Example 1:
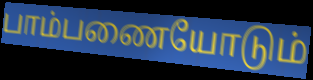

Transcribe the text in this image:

பாம்பணையோடும்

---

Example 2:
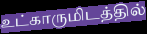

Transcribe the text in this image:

உட்காருமிடத்தில்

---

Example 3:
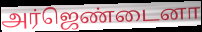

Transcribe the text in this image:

அர்ஜெண்டைனா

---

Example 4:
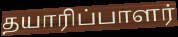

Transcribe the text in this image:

தயாரிப்பாளர்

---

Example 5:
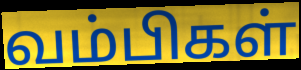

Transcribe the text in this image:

வம்பிகள்